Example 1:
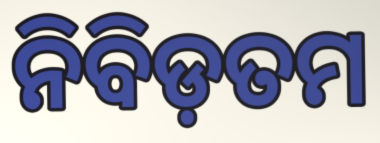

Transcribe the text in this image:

ନିବିଡ଼ତମ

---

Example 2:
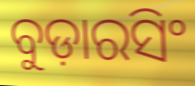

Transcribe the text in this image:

ବୁଡ଼ାରସିଂ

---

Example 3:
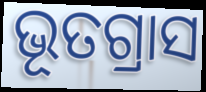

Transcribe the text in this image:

ଭୂତଗ୍ରାସ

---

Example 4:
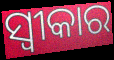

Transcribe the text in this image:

ସ୍ବୀକାର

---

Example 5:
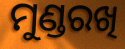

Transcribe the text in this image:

ମୁଣ୍ଡରଖି